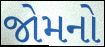
જોમનો